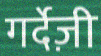
गर्देज़ी